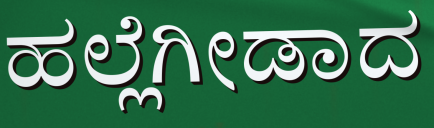
ಹಲ್ಲೆಗೀಡಾದ